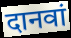
दानवां